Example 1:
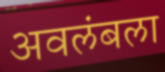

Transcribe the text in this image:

अवलंबला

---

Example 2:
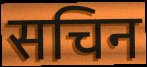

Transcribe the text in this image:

सचिन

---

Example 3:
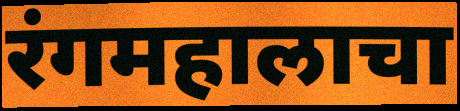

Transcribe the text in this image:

रंगमहालाचा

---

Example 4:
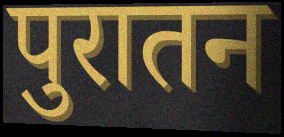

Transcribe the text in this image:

पुरातन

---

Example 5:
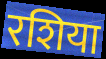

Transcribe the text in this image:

रशिया